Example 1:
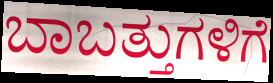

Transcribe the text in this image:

ಬಾಬತ್ತುಗಳಿಗೆ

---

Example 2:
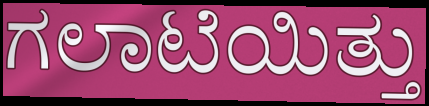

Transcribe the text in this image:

ಗಲಾಟೆಯಿತ್ತು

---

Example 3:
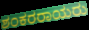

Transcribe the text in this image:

ಶಂಕರರಾಯರು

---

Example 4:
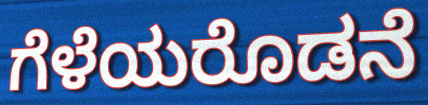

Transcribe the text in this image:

ಗೆಳೆಯರೊಡನೆ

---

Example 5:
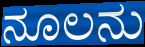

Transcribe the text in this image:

ನೂಲನು